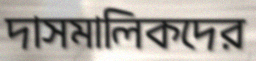
দাসমালিকদের